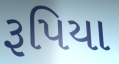
રૂપિયા